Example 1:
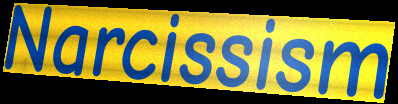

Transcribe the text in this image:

Narcissism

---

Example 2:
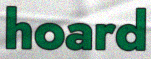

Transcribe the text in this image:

hoard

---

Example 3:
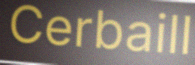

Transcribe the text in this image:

Cerbaill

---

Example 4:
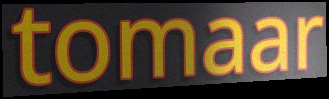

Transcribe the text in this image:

tomaar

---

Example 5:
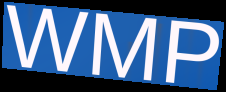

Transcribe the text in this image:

WMP